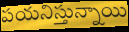
పయనిస్తున్నాయి